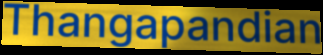
Thangapandian